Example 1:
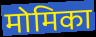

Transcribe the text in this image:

मोमिका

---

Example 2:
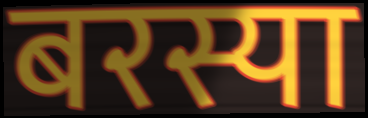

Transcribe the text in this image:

बरस्या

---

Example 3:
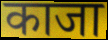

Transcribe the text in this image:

काजा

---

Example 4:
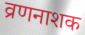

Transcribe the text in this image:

व्रणनाशक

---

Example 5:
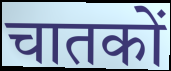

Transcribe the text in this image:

चातकों